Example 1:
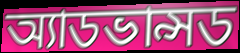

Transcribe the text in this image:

অ্যাডভান্সড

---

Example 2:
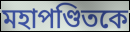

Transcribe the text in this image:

মহাপণ্ডিতকে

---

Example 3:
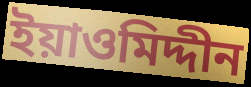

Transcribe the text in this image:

ইয়াওমিদ্দীন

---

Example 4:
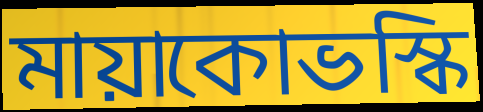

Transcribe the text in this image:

মায়াকোভস্কি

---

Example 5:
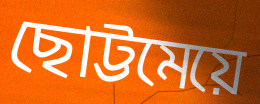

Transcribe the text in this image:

ছোট্টমেয়ে